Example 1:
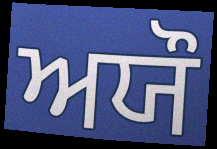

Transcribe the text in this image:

ਅਯੌ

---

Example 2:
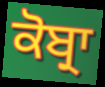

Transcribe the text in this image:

ਕੋਬ੍ਰਾ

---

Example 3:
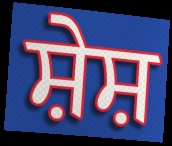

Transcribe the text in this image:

ਸ਼ੇਸ਼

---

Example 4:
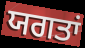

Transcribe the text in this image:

ਯਗਤਾਂ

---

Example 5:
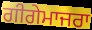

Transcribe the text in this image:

ਗੀਗੇਮਾਜਰਾ